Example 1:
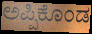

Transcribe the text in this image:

ಅಪ್ಪಿಕೊಂಡ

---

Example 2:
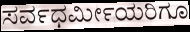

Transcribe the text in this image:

ಸರ್ವಧರ್ಮೀಯರಿಗೂ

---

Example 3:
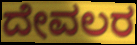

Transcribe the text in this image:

ದೇವಲರ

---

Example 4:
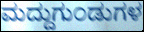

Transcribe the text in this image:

ಮದ್ದುಗುಂಡುಗಳ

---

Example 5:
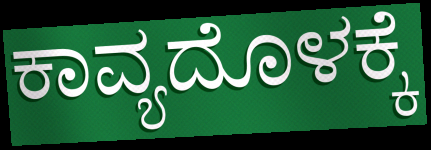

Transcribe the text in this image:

ಕಾವ್ಯದೊಳಕ್ಕೆ